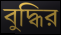
বুদ্ধির